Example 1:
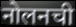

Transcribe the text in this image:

नोलनची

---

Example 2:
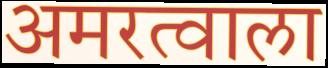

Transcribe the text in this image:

अमरत्वाला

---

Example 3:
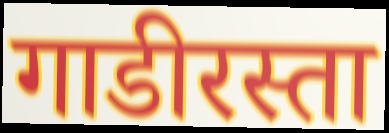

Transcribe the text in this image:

गाडीरस्ता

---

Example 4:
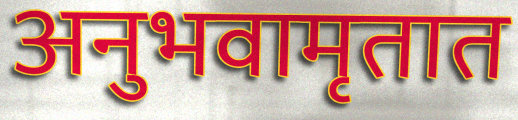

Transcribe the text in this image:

अनुभवामृतात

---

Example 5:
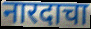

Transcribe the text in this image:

नारदाचा